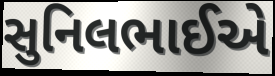
સુનિલભાઈએ